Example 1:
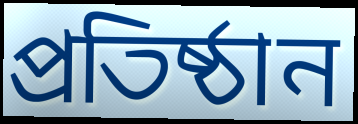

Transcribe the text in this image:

প্ৰতিষ্ঠান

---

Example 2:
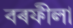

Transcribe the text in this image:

বৰফীলা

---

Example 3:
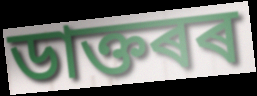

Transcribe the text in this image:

ডাক্তৰৰ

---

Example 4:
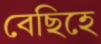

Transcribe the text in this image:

বেছিহে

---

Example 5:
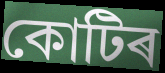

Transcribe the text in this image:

কোটিৰ